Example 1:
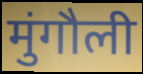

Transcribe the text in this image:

मुंगौली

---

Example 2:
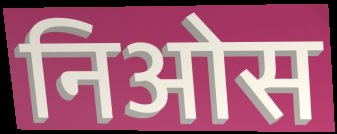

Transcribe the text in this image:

निओस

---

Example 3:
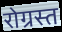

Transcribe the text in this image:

रोग्रस्त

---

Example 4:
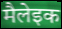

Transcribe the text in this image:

मैलेइक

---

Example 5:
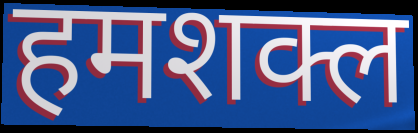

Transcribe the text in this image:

हमशक्ल